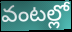
వంటల్లో